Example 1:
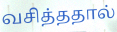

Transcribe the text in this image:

வசித்ததால்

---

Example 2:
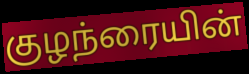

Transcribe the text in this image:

குழந்ரையின்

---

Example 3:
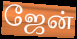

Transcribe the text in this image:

ஜேன்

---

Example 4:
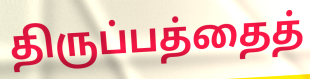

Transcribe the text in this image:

திருப்பத்தைத்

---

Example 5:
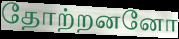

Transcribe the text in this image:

தோற்றனனோ